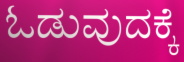
ಓಡುವುದಕ್ಕೆ